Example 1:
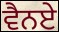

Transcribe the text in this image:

ਵੈਨਏ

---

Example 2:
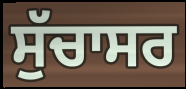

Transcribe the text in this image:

ਸੁੱਚਾਸਰ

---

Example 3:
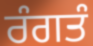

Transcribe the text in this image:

ਰੰਗਤੰ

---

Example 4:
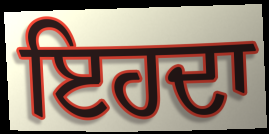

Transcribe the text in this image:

ਇਹਦਾ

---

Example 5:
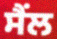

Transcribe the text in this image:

ਸੈਂਲ